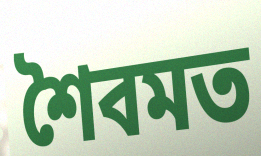
শৈবমত